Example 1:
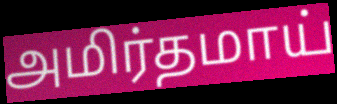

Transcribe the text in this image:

அமிர்தமாய்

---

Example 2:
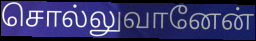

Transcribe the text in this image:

சொல்லுவானேன்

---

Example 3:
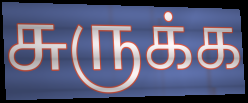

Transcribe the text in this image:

சுருக்க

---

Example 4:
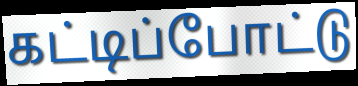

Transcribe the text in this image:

கட்டிப்போட்டு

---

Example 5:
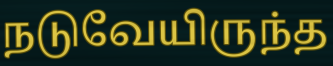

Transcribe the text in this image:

நடுவேயிருந்த